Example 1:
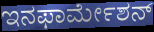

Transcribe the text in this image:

ಇನಫಾರ್ಮೇಶನ್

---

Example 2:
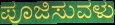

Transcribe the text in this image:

ಪೂಜಿಸುವಳು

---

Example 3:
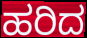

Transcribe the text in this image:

ಹರಿದ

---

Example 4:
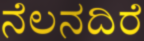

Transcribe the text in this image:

ನೆಲನದಿರೆ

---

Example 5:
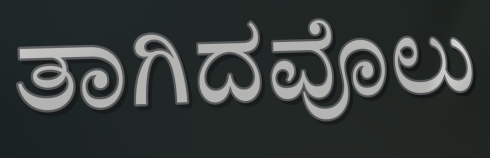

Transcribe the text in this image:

ತಾಗಿದವೊಲು